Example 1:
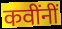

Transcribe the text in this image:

कवींनीं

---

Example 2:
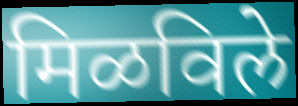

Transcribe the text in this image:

मिळविले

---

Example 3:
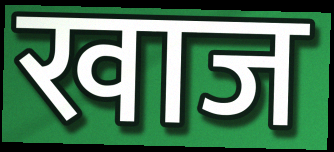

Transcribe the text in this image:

खाज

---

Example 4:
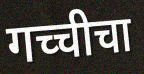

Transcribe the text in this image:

गच्चीचा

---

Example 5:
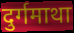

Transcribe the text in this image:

दुर्गमाथा